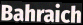
Bahraich